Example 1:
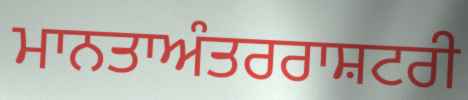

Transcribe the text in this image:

ਮਾਨਤਾਅੰਤਰਰਾਸ਼ਟਰੀ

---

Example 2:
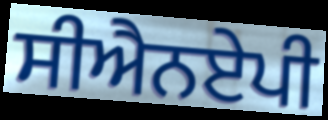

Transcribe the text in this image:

ਸੀਐਨਏਪੀ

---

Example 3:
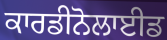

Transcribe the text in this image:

ਕਾਰਡੀਨੋਲਾਈਡ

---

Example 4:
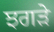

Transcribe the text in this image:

ਝਗਡ਼ੇ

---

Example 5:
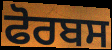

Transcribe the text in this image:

ਫੋਰਬਸ